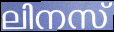
ലിനസ്